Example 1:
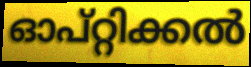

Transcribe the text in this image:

ഓപ്റ്റിക്കൽ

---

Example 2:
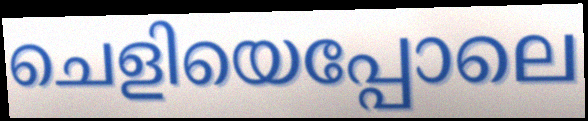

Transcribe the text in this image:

ചെളിയെപ്പോലെ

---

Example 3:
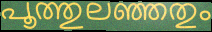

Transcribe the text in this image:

പൂത്തുലഞ്ഞതും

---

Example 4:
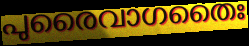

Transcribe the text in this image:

പുരൈവാഗതൈഃ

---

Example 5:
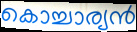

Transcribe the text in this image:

കൊച്ചാര്യൻ